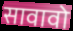
सावावो